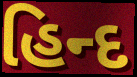
હિન્દ